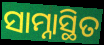
ସାମ୍ନାସ୍ଥିତ